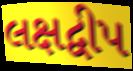
લક્ષદ્વીપ